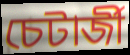
চেটাৰ্জী